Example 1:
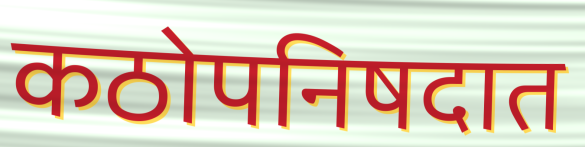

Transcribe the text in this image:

कठोपनिषदात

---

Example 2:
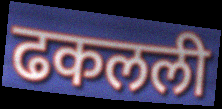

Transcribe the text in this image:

ढकलली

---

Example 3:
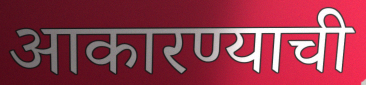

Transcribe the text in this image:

आकारण्याची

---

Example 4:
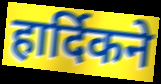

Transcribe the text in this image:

हार्दिकने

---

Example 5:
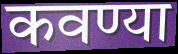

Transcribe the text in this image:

कवण्या